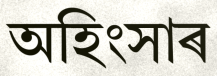
অহিংসাৰ